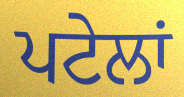
ਪਟੇਲਾਂ